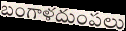
బంగాళదుంపలు